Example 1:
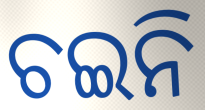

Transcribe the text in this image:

ଚଇନି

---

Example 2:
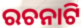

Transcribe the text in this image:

ରଚନାଟି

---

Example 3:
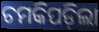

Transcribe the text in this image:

ଚମକିପଡ଼ିଲା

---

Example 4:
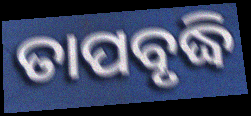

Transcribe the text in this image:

ତାପବୃଦ୍ଧି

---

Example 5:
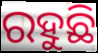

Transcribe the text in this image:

ରହୁଛି